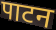
पाटन